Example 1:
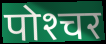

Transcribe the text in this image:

पोश्चर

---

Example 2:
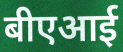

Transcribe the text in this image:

बीएआई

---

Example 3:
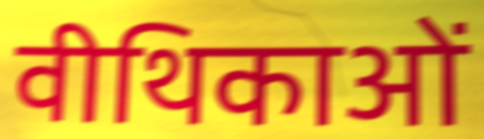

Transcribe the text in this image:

वीथिकाओं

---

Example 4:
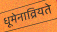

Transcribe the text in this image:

धूमेनाव्रियते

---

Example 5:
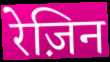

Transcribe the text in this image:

रेज़िन